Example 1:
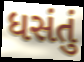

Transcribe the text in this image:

ધસંતું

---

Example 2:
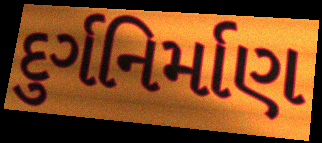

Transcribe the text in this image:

દુર્ગનિર્માણ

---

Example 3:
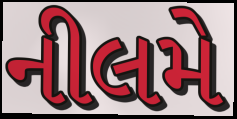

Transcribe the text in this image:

નીલમે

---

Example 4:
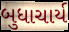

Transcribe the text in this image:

બુધાચાર્ય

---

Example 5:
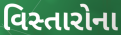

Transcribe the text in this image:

વિસ્તારોના